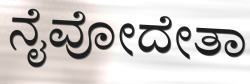
ನೈವೋದೇತಾ